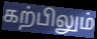
கற்பிலும்